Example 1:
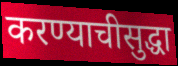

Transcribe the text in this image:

करण्याचीसुद्धा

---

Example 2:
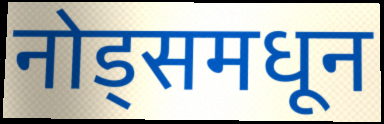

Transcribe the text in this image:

नोड्समधून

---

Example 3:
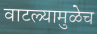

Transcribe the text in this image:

वाटल्यामुळेच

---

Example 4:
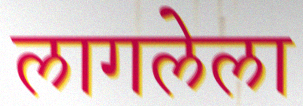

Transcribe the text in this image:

लागलेला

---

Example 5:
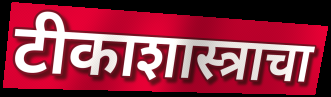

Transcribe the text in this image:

टीकाशास्त्राचा